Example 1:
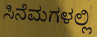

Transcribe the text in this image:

ಸಿನೆಮಗಳಲ್ಲಿ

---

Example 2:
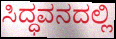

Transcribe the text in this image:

ಸಿದ್ಧವನದಲ್ಲಿ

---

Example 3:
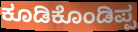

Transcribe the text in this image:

ಕೂಡಿಕೊಂಡಿಪ್ಪ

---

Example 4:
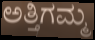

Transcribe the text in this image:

ಅತ್ತಿಗಮ್ಮ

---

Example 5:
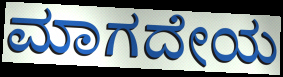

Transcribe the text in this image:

ಮಾಗದೇಯ